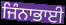
ਜਿੰਨਾਭਾਈ